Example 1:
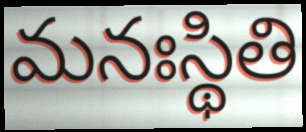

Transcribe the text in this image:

మనఃస్థితి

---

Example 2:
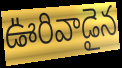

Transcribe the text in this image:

ఊరివాడైన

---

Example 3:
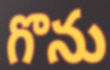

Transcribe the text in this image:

గొను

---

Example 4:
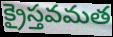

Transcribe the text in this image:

క్రైస్తవమత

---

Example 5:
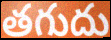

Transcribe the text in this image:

తగుదు